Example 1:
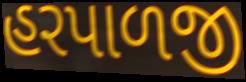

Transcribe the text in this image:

હરપાળજી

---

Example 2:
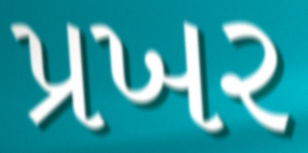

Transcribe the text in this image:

પ્રખર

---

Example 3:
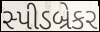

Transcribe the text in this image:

સ્પીડબ્રેકર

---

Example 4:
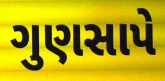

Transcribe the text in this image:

ગુણસાપે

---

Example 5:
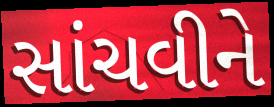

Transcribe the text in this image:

સાંચવીને